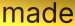
made